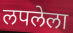
लपलेला